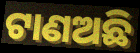
ଟାଣଅଛି